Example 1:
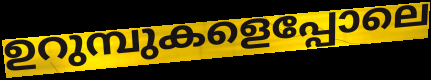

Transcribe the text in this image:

ഉറുമ്പുകളെപ്പോലെ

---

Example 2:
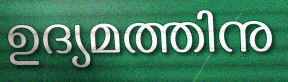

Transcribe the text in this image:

ഉദ്യമത്തിനു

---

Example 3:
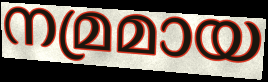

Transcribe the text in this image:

നമ്രമായ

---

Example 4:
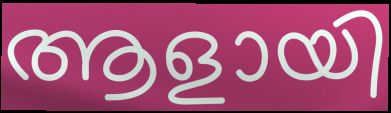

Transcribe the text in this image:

ആളായി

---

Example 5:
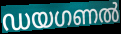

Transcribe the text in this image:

ഡയഗണൽ